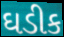
ઘડીક